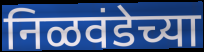
निळवंडेच्या